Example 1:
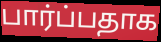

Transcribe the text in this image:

பார்ப்பதாக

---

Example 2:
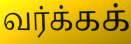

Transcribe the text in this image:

வர்க்கக்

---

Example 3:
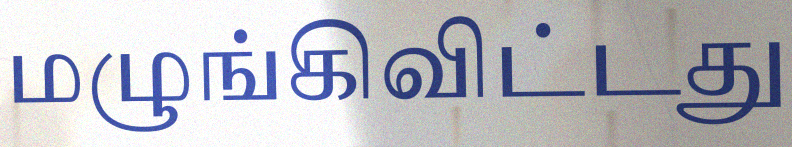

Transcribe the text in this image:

மழுங்கிவிட்டது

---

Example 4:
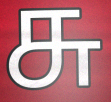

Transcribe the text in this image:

சு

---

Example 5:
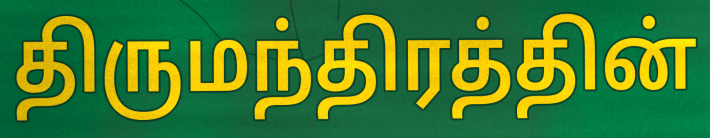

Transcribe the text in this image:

திருமந்திரத்தின்